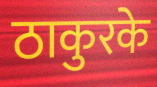
ठाकुरके